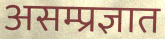
असम्प्रज्ञात